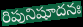
రిపునిషూదనః